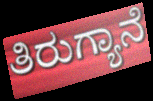
ತಿರುಗ್ಯಾನೆ